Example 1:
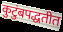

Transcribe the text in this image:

कुटुंबपद्धतीत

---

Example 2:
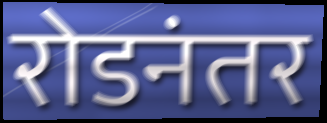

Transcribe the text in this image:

रोडनंतर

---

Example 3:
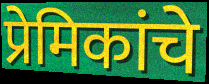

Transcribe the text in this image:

प्रेमिकांचे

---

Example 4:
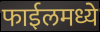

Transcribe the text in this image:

फाईलमध्ये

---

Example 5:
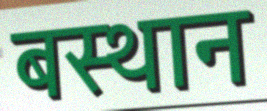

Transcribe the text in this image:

बस्थान